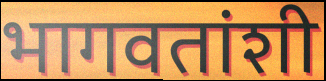
भागवतांशी